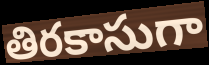
తిరకాసుగా